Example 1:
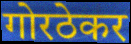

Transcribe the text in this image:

गोरठेकर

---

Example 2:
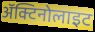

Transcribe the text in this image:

ॲक्टिनोलाइट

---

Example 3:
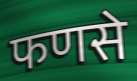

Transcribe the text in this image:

फणसे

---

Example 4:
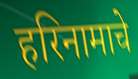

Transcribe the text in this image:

हरिनामाचे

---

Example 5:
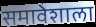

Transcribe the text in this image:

समावेशाला